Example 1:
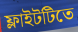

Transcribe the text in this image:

ফ্লাইটটিতে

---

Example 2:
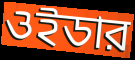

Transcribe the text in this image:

ওইডার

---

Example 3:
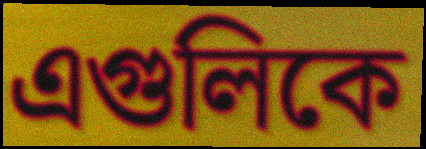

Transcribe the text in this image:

এগুলিকে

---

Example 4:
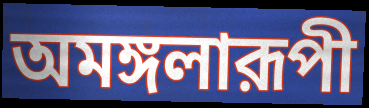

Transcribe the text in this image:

অমঙ্গলারূপী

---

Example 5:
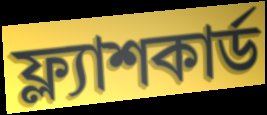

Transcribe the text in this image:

ফ্ল্যাশকার্ড